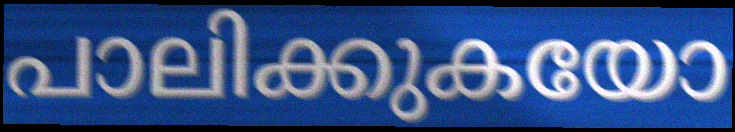
പാലിക്കുകയോ